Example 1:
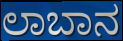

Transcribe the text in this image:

ಲಾಬಾನ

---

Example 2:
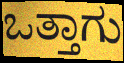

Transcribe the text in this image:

ಒತ್ತಾಗು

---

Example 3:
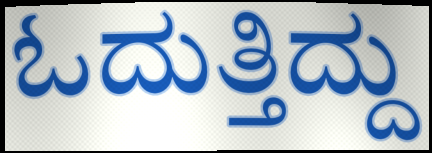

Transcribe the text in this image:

ಓದುತ್ತಿದ್ದು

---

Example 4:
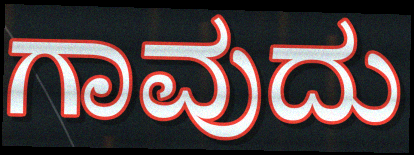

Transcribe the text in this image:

ಗಾವುದು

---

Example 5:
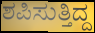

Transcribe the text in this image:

ಶಪಿಸುತ್ತಿದ್ದ